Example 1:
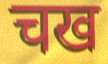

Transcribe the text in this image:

चख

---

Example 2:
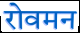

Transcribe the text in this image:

रोवमन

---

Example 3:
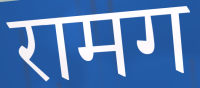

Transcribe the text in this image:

रामग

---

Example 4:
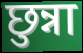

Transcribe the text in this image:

छुन्ना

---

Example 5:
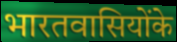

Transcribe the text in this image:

भारतवासियोंके